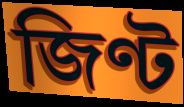
জিণ্ট